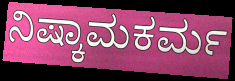
ನಿಷ್ಕಾಮಕರ್ಮ